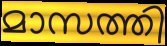
മാസത്തി